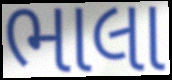
ભાલા